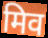
मिव